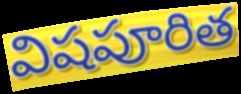
విషపూరిత